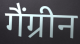
गैंग्रीन